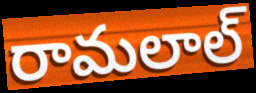
రామలాల్